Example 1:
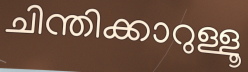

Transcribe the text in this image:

ചിന്തിക്കാറുള്ളൂ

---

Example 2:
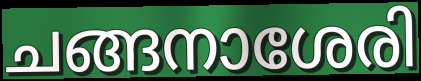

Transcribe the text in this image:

ചങ്ങനാശേരി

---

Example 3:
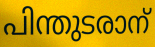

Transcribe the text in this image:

പിന്തുടരാന്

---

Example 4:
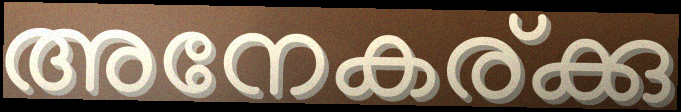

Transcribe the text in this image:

അനേകര്ക്കു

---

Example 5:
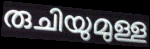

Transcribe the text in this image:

രുചിയുമുള്ള